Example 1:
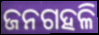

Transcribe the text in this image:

ଜନଗହଳି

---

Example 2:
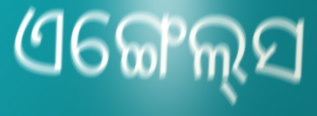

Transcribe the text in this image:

ଏଙ୍ଗେଲ୍‌ସ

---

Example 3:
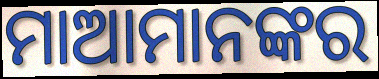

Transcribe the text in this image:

ମାଆମାନଙ୍କର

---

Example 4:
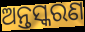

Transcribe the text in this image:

ଅନ୍ତସ୍କରଣ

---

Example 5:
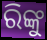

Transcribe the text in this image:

ରିଙ୍କୁ